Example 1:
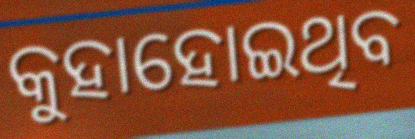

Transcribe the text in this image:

କୁହାହୋଇଥିବ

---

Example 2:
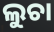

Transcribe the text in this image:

ଲୁଚା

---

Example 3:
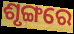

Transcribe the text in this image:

ଶୃଙ୍ଗରେ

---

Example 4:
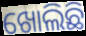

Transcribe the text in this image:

ଖୋଲିଛି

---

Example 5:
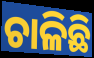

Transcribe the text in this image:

ଚାଳିଛି